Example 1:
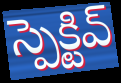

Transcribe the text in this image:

స్పెక్టివ్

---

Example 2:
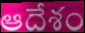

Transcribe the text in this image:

ఆదేశం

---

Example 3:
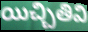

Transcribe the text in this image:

యిచ్చితివి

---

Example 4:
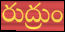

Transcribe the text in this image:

రుద్రుం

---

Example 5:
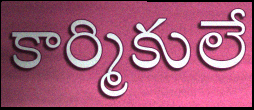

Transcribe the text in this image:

కార్మికులే